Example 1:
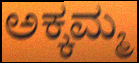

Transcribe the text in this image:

ಅಕ್ಕಮ್ಮ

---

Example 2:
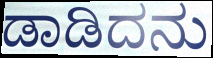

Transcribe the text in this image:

ಡಾಡಿದನು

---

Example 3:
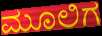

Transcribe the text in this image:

ಮೂಲಿಗ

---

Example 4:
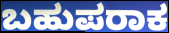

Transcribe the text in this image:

ಬಹುಪರಾಕ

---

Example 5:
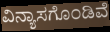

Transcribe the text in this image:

ವಿನ್ಯಾಸಗೊಂಡಿವೆ